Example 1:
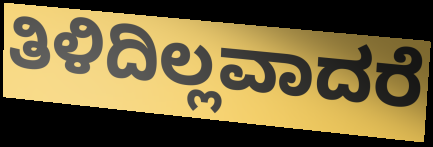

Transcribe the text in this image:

ತಿಳಿದಿಲ್ಲವಾದರೆ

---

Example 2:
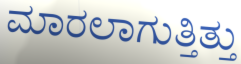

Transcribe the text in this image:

ಮಾರಲಾಗುತ್ತಿತ್ತು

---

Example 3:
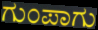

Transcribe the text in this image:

ಗುಂಪಾಗು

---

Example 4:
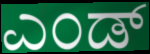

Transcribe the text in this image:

ಎಂಡ್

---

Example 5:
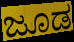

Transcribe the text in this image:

ಜೂಡ